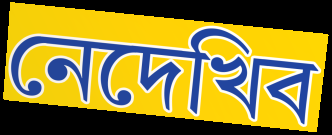
নেদেখিব